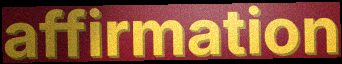
affirmation